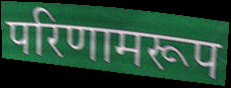
परिणामरूप